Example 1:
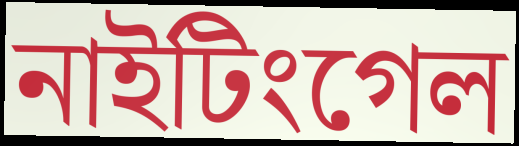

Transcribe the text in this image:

নাইটিংগেল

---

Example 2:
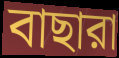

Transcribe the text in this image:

বাছারা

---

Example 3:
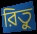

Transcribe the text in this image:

রিতু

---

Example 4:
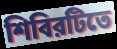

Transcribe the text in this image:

শিবিরটিতে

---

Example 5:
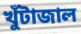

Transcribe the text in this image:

খুঁটাজাল